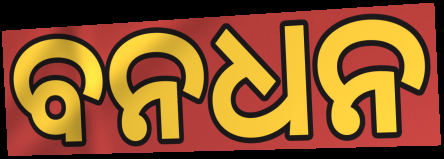
ବନଧନ